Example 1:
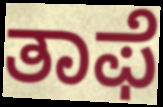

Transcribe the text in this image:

ತಾಫೆ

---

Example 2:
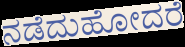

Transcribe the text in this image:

ನಡೆದುಹೋದರೆ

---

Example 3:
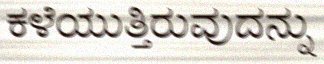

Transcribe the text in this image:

ಕಳೆಯುತ್ತಿರುವುದನ್ನು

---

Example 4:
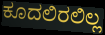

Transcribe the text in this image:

ಕೂದಲಿರಲಿಲ್ಲ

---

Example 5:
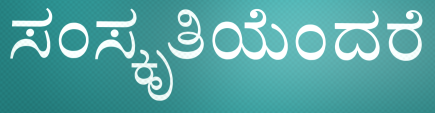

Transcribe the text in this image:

ಸಂಸ್ಕೃತಿಯೆಂದರೆ